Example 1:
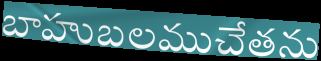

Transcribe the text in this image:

బాహుబలముచేతను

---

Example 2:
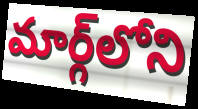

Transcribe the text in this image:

మార్గ్‌లోని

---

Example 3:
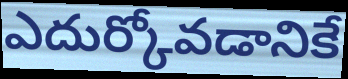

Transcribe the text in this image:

ఎదుర్కోవడానికే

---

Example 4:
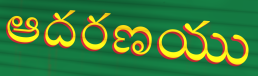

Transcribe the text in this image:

ఆదరణయు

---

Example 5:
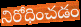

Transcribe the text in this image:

నిరోధించడం